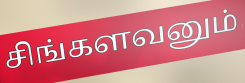
சிங்களவனும்